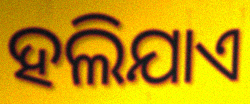
ହଲିଯାଏ